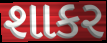
શાકર